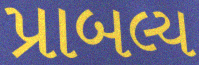
પ્રાબલ્ય